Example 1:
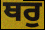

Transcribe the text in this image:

ਥਰੁ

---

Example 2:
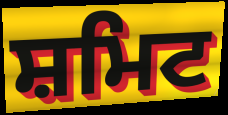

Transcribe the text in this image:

ਸ਼ਮਿਟ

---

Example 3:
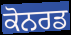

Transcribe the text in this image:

ਕੋਨਰਡ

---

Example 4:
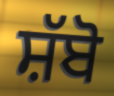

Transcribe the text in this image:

ਸ਼ੱਬੋ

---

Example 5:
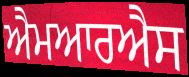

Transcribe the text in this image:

ਐਮਆਰਐਸ